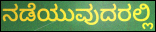
ನಡೆಯುವುದರಲ್ಲಿ